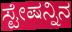
ಸ್ಟೇಷನ್ನಿನ